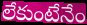
లేకుంటేనేం